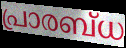
പ്രാരബ്ധ